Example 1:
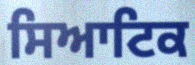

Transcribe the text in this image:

ਸਿਆਟਿਕ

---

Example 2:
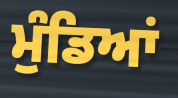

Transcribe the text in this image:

ਮੁੰਡਿਆਂ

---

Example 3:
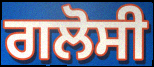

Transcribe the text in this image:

ਗਲੋਸੀ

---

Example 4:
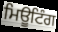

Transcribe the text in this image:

ਮਿਊਟਿੰਗ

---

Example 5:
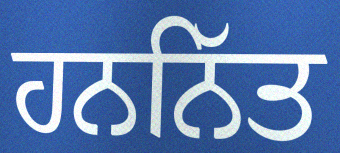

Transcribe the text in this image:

ਹਨਨਿੱਤ